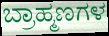
ಬ್ರಾಹ್ಮಣಗಳ